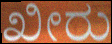
ಖೀರು